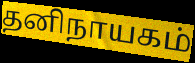
தனிநாயகம்